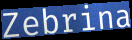
Zebrina